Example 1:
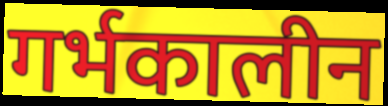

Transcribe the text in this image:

गर्भकालीन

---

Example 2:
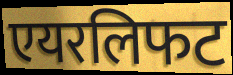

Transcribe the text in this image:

एयरलिफट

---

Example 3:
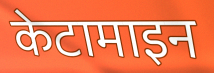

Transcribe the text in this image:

केटामाइन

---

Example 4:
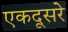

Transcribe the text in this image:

एकदूसरे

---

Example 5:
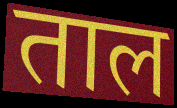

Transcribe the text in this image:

ताल